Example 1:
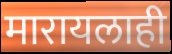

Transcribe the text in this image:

मारायलाही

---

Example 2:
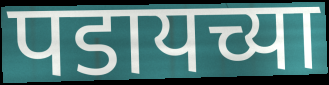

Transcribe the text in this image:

पडायच्या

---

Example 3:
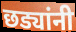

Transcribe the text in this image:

छड्यांनी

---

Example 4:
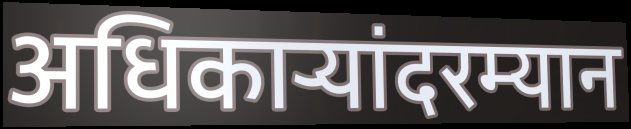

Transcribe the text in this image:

अधिकाऱ्यांदरम्यान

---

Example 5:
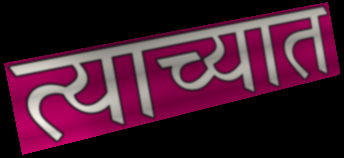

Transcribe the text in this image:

त्याच्यात